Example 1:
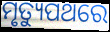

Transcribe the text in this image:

ମୃତ୍ୟୁପଥରେ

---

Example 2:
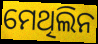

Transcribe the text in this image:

ମେଥିଲିନ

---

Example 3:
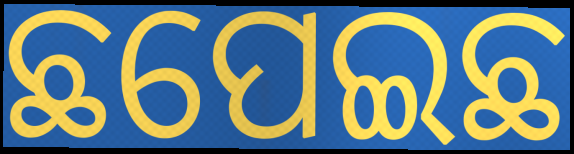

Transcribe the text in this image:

ଛପେଇଛ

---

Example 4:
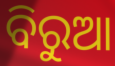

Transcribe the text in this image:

ବିରୁଆ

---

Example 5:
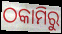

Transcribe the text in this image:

ଠକାମିରୁ